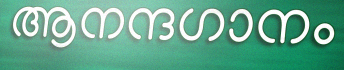
ആനന്ദഗാനം